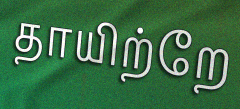
தாயிற்றே